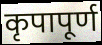
कृपापूर्ण